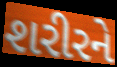
શરીરને